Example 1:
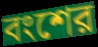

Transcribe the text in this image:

বংশের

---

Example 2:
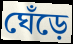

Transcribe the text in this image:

ঘেঁড়ে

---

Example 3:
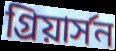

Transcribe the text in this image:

গ্রিয়ার্সন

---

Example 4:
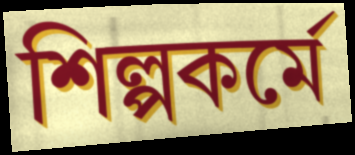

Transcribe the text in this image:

শিল্পকর্মে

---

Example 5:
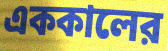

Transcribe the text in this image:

এককালের